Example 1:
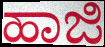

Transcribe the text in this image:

ಹಾಜಿ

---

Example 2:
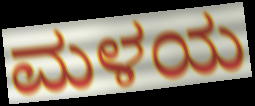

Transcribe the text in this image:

ಮಳಯ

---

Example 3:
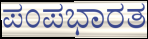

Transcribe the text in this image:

ಪಂಪಭಾರತ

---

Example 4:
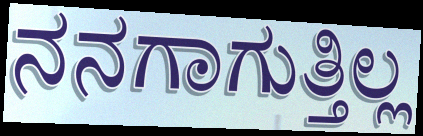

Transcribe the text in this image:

ನನಗಾಗುತ್ತಿಲ್ಲ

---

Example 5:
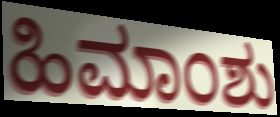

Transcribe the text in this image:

ಹಿಮಾಂಶು